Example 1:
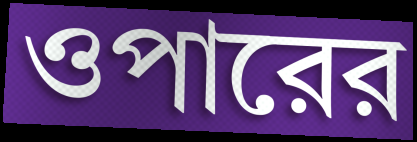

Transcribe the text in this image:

ওপারের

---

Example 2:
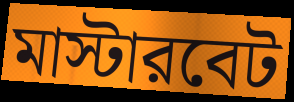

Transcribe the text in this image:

মাস্টারবেট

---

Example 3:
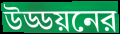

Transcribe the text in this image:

উড্ডয়নের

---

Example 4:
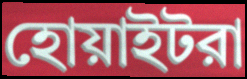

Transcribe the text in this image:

হোয়াইটরা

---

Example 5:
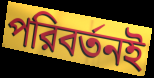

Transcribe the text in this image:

পরিবর্তনই